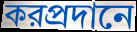
করপ্রদানে